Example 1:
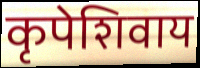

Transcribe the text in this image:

कृपेशिवाय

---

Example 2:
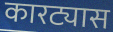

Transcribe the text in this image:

कारट्यास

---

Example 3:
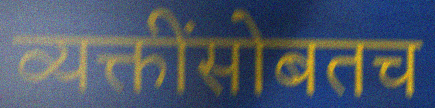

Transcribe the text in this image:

व्यक्तींसोबतच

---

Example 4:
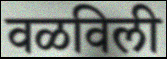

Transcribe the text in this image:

वळविली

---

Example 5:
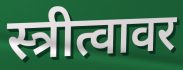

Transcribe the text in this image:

स्त्रीत्वावर